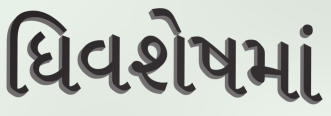
ધિવશેષમાં